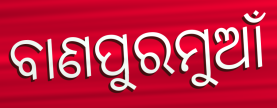
ବାଣପୁରମୁଆଁ